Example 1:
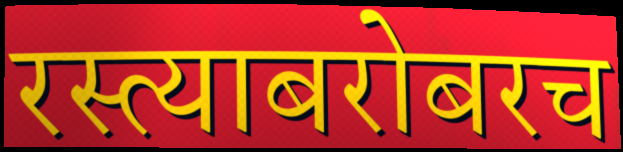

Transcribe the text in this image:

रस्त्याबरोबरच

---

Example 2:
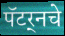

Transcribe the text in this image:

पॅटर्नचे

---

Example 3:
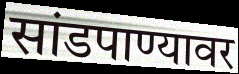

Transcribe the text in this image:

सांडपाण्यावर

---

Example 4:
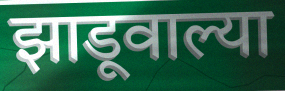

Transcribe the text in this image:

झाडूवाल्या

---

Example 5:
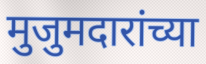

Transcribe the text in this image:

मुजुमदारांच्या